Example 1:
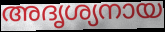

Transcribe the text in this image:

അദൃശ്യനായ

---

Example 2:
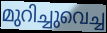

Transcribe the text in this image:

മുറിച്ചുവെച്ച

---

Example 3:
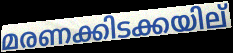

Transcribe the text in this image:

മരണക്കിടക്കയില്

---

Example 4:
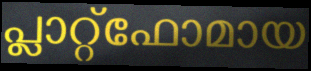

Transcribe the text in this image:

പ്ലാറ്റ്ഫോമായ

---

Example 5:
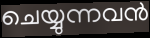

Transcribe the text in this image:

ചെയ്യുന്നവൻ